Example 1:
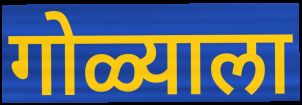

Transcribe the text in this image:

गोळ्याला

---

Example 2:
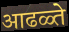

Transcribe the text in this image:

आढळ्ते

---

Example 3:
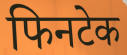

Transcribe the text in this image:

फिनटेक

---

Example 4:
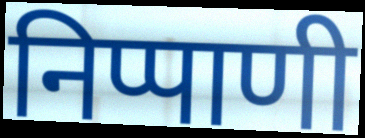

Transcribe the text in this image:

निप्पाणी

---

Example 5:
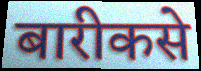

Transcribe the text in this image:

बारीकसे